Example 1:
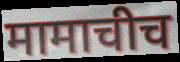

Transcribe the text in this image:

मामाचीच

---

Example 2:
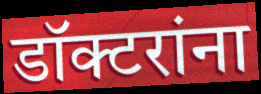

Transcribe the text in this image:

डॉक्टरांना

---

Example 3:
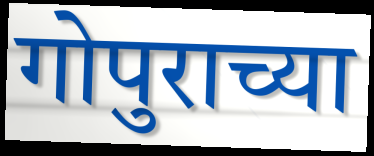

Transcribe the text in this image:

गोपुराच्या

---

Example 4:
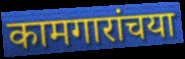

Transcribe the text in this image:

कामगारांचया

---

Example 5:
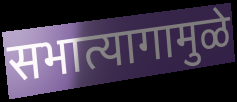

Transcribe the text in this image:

सभात्यागामुळे